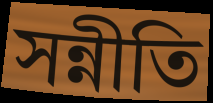
সন্নীতি